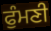
ਫੁੰਮਣੀ